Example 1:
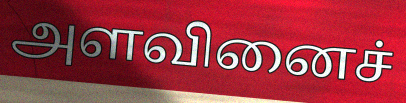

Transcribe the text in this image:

அளவினைச்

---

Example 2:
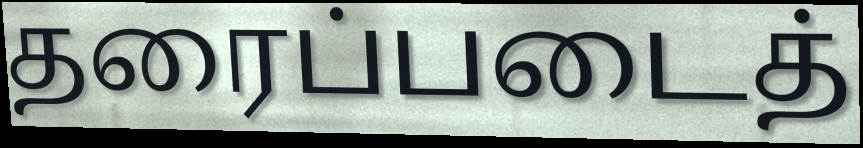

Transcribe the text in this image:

தரைப்படைத்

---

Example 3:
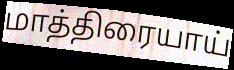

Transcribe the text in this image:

மாத்திரையாய்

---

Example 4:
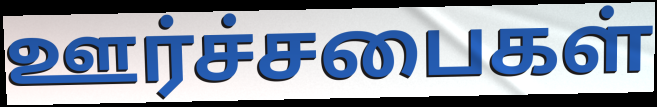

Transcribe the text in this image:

ஊர்ச்சபைகள்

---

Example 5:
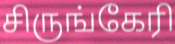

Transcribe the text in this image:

சிருங்கேரி